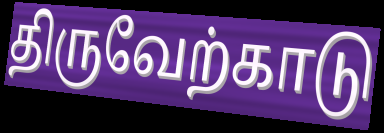
திருவேற்காடு